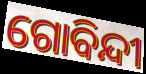
ଗୋବିନ୍ଦୀ